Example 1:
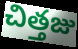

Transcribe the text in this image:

చిత్తజు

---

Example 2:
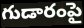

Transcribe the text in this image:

గుడారంపై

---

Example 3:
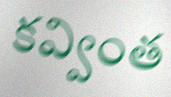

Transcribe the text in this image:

కవ్వింత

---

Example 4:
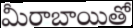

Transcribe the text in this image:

మీరాబాయితో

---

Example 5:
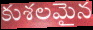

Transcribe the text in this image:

కుశలమైన